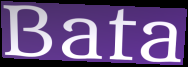
Bata